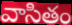
వాసితం